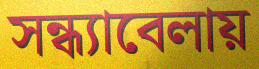
সন্ধ্যাবেলায়